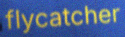
flycatcher